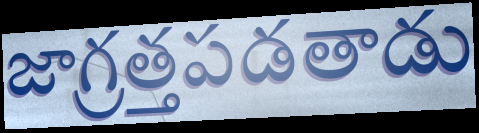
జాగ్రత్తపడతాడు